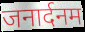
जनार्दनम